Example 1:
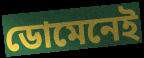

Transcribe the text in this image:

ডোমেনেই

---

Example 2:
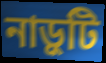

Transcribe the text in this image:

নাড়ুটি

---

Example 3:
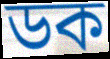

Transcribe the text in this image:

ডক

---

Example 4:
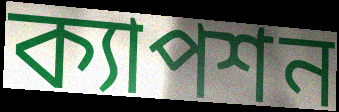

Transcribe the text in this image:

ক্যাপশন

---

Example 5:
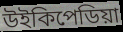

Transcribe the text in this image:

উইকিপেডিয়া